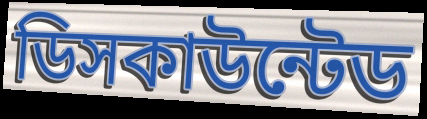
ডিসকাউন্টেড